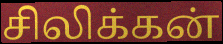
சிலிக்கன்